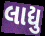
લાદ્યુ